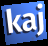
kaj